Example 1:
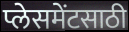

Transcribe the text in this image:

प्लेसमेंटसाठी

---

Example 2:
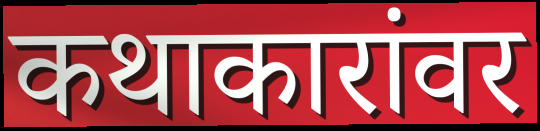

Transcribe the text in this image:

कथाकारांवर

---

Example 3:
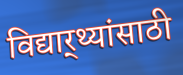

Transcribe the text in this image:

विद्यार्थ्यांसाठी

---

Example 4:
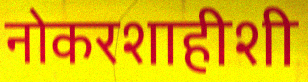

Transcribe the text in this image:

नोकरशाहीशी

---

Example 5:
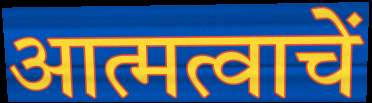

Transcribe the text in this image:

आत्मत्वाचें